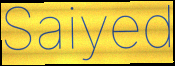
Saiyed